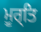
ਮੂਰ੍ਤਿ